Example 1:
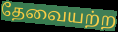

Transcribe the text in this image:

தேவையற்ற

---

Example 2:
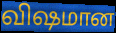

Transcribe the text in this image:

விஷமான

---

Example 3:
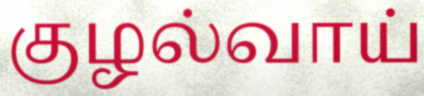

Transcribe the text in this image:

குழல்வாய்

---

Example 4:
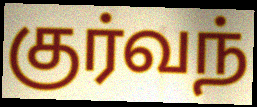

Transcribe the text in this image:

குர்வந்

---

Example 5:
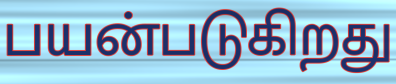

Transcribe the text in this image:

பயன்படுகிறது